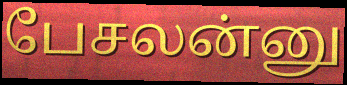
பேசலன்னு